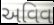
અવિવ